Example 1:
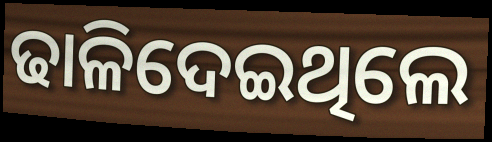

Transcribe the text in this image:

ଢାଳିଦେଇଥିଲେ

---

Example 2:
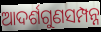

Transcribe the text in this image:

ଆଦର୍ଶଗୁଣସମ୍ପନ୍ନ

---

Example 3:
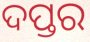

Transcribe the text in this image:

ଦପ୍ତର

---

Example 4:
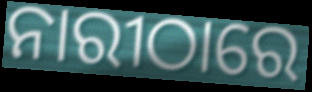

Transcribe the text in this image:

ନାରୀଠାରେ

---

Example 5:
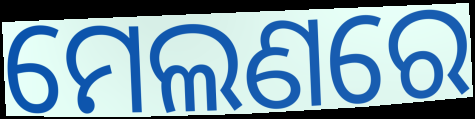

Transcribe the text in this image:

ମେଲଣରେ